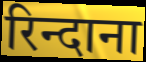
रिन्दाना